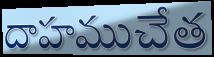
దాహముచేత